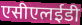
एसीएलईडी